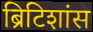
ब्रिटिशांस